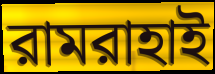
রামরাহাই